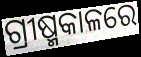
ଗ୍ରୀଷ୍ମକାଳରେ